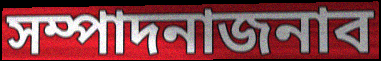
সম্পাদনাজনাব